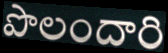
పొలందారి